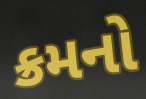
ક્રમનો